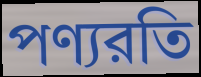
পণ্যরতি